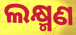
ଲକ୍ଷ୍ମଣ